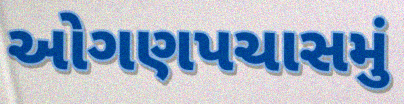
ઓગણપચાસમું